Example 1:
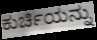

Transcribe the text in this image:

ಕುರ್ಚಿಯನ್ನು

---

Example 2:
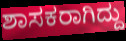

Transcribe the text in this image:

ಶಾಸಕರಾಗಿದ್ದು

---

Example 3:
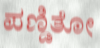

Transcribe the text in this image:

ಪಣ್ಡಿತೋ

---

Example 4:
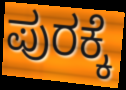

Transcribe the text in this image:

ಪುರಕ್ಕೆ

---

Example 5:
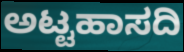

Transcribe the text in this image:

ಅಟ್ಟಹಾಸದಿ